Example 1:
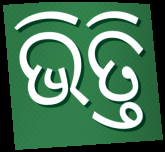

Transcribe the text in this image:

ଭିତ୍ତି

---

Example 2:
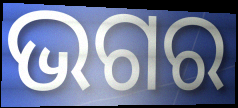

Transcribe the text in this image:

ଭଗର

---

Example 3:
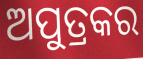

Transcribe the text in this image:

ଅପୁତ୍ରକର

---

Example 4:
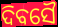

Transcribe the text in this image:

ଦିବସୈ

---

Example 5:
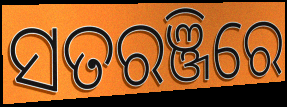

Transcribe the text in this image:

ସତରଞ୍ଜିରେ